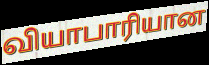
வியாபாரியான